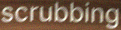
scrubbing